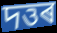
দত্তৰ